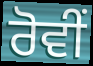
ਰੋਵੀਂ